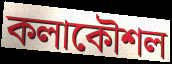
কলাকৌশল